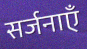
सर्जनाएँ